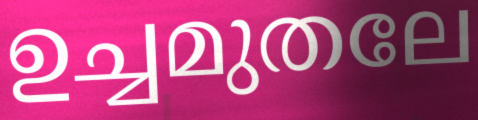
ഉച്ചമുതലേ